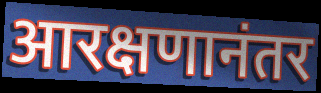
आरक्षणानंतर